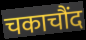
चकाचौंद